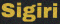
Sigiri